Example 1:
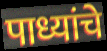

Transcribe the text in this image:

पाध्यांचे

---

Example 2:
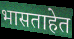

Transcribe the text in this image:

भासताहेत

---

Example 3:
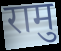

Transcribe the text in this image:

रामु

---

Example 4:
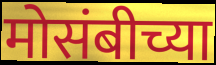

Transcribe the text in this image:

मोसंबीच्या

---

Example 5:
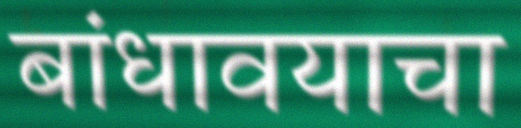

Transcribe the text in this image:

बांधावयाचा